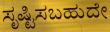
ಸೃಷ್ಟಿಸಬಹುದೇ